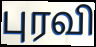
புரவி